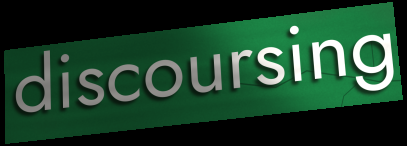
discoursing